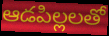
ఆడపిల్లలతో